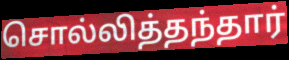
சொல்லித்தந்தார்